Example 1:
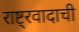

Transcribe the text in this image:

राष्ट्रवादाची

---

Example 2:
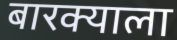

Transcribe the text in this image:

बारक्याला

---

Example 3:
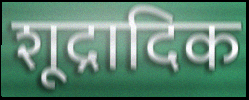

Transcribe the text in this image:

शूद्रादिक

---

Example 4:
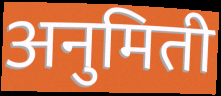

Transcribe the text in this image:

अनुमिती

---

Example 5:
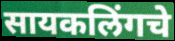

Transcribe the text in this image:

सायकलिंगचे